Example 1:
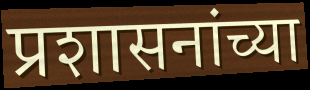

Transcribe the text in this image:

प्रशासनांच्या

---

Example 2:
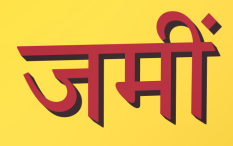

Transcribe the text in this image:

जमीं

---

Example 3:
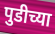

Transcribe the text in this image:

पुडीच्या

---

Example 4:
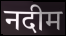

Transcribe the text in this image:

नदीम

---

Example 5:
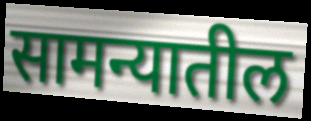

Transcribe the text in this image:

सामन्यातील